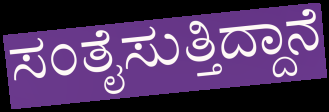
ಸಂತೈಸುತ್ತಿದ್ದಾನೆ